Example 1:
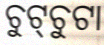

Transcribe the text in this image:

ଚୁଟ୍‌ଚୁଟା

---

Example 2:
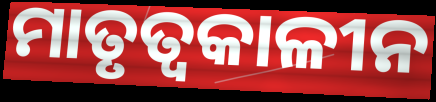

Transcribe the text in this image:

ମାତୃତ୍ୱକାଳୀନ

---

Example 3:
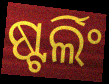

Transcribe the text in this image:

ଷ୍ଟର୍ଲିଂ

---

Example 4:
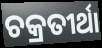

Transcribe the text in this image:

ଚକ୍ରତୀର୍ଥା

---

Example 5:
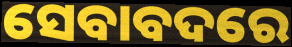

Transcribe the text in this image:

ସେବାବଦରେ